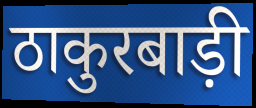
ठाकुरबाड़ी